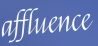
affluence